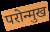
परोन्मुख